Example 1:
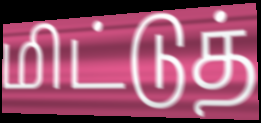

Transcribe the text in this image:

மிட்டுத்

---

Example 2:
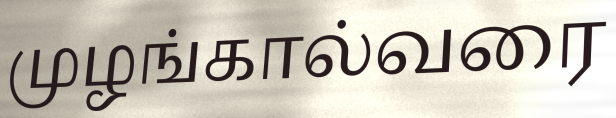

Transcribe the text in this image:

முழங்கால்வரை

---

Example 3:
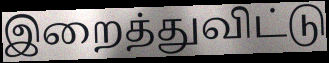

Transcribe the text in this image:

இறைத்துவிட்டு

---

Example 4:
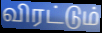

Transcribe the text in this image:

விரட்டும்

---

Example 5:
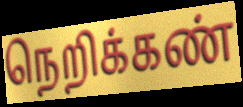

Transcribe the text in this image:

நெறிக்கண்